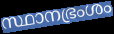
സ്ഥാനഭ്രംശം